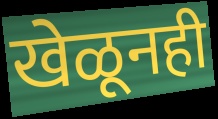
खेळूनही